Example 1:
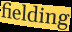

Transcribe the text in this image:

fielding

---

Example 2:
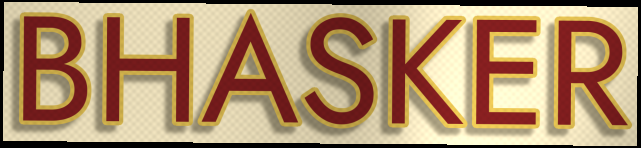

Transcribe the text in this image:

BHASKER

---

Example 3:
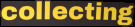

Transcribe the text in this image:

collecting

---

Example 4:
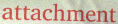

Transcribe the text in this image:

attachment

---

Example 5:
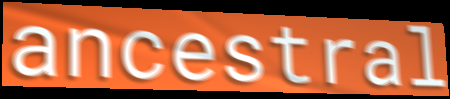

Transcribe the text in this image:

ancestral